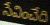
సేవించేది